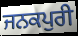
ਜਨਕਪੁਰੀ